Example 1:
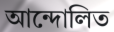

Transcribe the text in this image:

আন্দোলিত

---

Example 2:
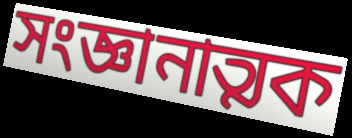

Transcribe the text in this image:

সংজ্ঞানাত্মক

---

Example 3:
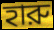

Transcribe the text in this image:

হারু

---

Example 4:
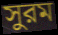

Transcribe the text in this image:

সুরম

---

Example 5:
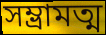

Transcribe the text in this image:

সম্ভ্রামত্ম